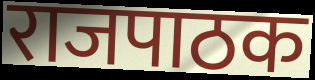
राजपाठक